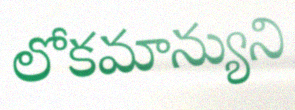
లోకమాన్యుని